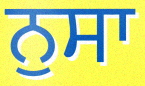
ਨੁਸਾ